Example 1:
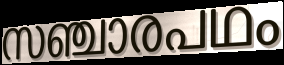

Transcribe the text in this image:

സഞ്ചാരപഥം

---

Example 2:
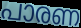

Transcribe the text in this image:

പാരണ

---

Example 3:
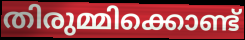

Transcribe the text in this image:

തിരുമ്മിക്കൊണ്ട്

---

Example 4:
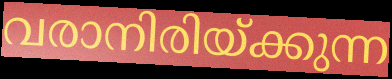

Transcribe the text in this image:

വരാനിരിയ്ക്കുന്ന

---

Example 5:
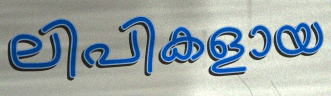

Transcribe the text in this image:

ലിപികളായ